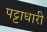
पट्टाधारी